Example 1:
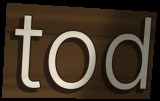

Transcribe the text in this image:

tod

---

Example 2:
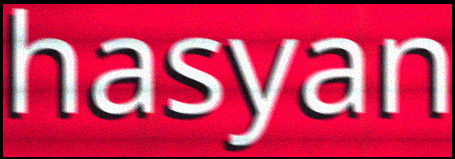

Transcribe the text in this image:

hasyan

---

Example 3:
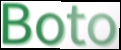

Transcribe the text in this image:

Boto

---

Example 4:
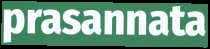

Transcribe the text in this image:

prasannata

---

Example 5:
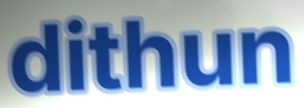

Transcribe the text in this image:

dithun